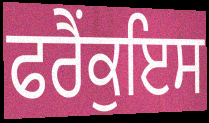
ਫਰੈਂਕੁਇਸ